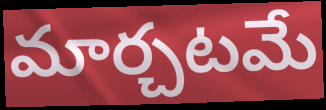
మార్చటమే